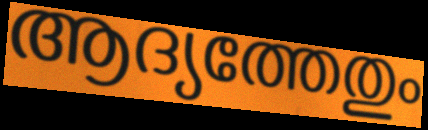
ആദ്യത്തേതും